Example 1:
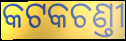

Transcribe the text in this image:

କଟକଚଣ୍ତୀ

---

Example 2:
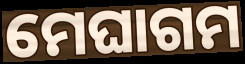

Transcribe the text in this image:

ମେଘାଗମ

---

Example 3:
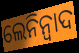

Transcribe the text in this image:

ଲେନିନ୍ବାଦ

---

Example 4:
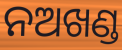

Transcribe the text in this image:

ନଅଖଣ୍ଡ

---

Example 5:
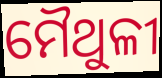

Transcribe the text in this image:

ମୈଥୁଳୀ